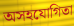
অসহযোগিতা